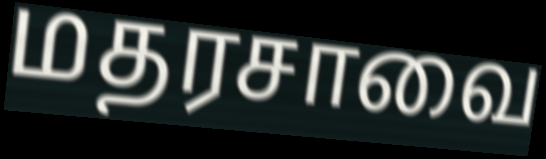
மதரசாவை